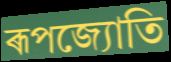
ৰূপজ্যোতি